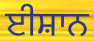
ਈਸ਼ਾਨ